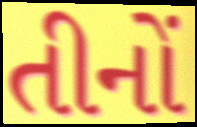
તીનોં